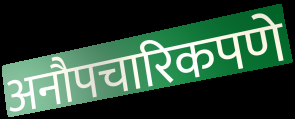
अनौपचारिकपणे